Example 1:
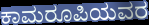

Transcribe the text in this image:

ಕಾಮರೂಪಿಯವರ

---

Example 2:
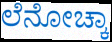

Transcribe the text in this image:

ಲೆನೋಚ್ಕಾ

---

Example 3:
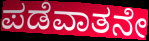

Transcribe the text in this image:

ಪಡೆವಾತನೇ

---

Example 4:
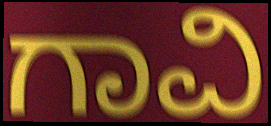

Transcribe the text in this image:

ಗಾವಿ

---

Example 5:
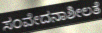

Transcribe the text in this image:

ಸಂವೇದನಾಶೀಲತೆ